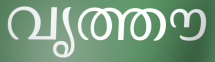
വൃത്തൗ